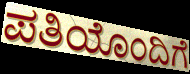
ಪತಿಯೊಂದಿಗೆ